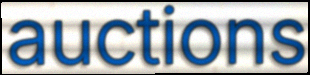
auctions